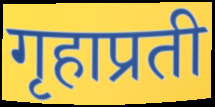
गृहाप्रती